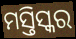
ମସ୍ତିସ୍କର